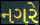
નગરે